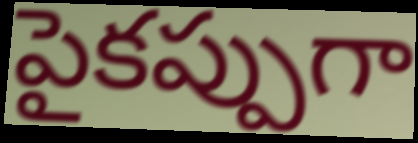
పైకప్పుగా